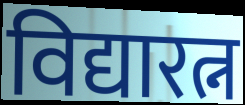
विद्यारत्न